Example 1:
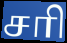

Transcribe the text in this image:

சரி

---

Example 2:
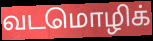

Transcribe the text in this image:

வடமொழிக்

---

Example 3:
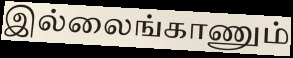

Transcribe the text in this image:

இல்லைங்காணும்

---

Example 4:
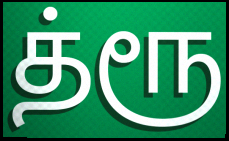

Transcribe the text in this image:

த்ரூ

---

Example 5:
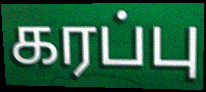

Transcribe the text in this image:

கரப்பு